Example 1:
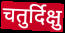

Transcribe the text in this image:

चतुर्दिक्षु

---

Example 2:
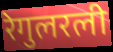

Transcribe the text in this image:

रेगुलरली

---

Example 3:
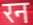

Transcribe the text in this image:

रन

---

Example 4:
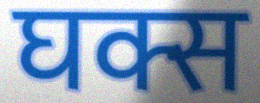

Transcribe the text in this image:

घक्स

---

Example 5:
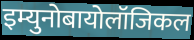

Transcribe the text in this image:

इम्युनोबायोलॉजिकल